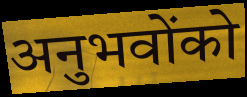
अनुभवोंको